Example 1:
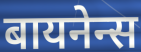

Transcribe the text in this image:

बायनेन्स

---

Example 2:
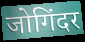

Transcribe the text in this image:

जोगिंदर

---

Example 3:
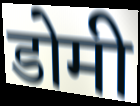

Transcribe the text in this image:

डोमी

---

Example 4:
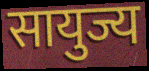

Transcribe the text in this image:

सायुज्य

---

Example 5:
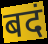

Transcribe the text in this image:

बदं